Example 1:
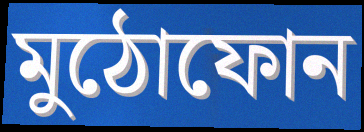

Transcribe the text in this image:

মুঠোফোন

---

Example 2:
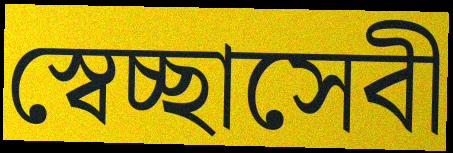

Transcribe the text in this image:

স্বেচ্ছাসেবী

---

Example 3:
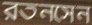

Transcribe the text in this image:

রতনসেন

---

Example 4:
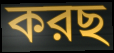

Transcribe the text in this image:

করছ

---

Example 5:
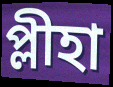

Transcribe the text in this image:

প্লীহা